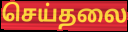
செய்தலை